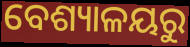
ବେଶ୍ୟାଳୟରୁ